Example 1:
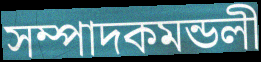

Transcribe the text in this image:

সম্পাদকমন্ডলী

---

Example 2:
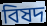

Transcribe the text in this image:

বিষদ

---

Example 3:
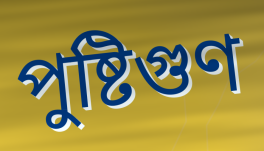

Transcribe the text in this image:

পুষ্টিগুণ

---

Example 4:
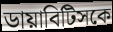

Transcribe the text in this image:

ডায়াবিটিসকে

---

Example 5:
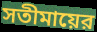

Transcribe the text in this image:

সতীমায়ের